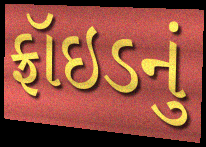
ફ્રૉઇડનું